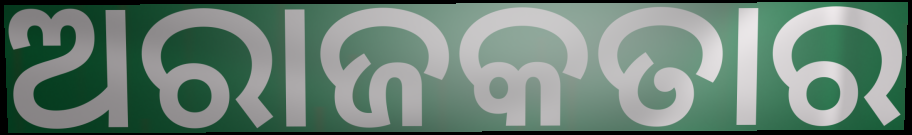
ଅରାଜକତାର